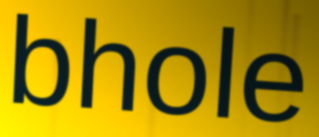
bhole